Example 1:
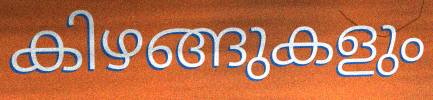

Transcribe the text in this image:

കിഴങ്ങുകളും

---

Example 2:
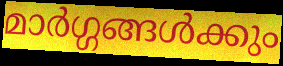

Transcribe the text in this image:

മാർഗ്ഗങ്ങൾക്കും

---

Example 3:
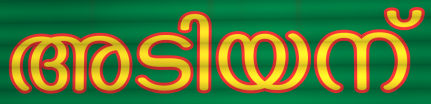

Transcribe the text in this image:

അടിയന്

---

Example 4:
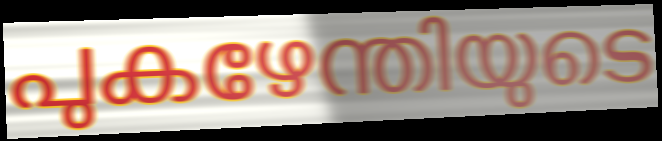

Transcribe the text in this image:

പുകഴേന്തിയുടെ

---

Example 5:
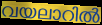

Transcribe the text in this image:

വയലാറിൽ